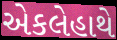
એકલેહાથે